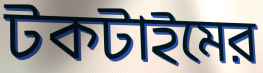
টকটাইমের